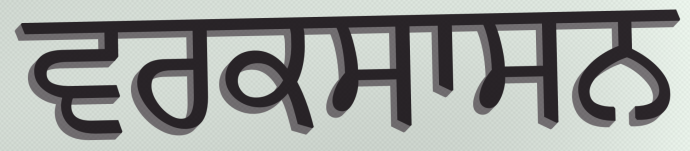
ਵਰਕਸਾਸਨ